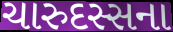
ચારુદસ્સના